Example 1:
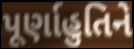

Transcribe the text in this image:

પૂર્ણાહુતિને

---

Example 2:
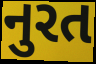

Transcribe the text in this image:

નુરત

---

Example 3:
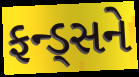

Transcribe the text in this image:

ફન્ડ્સને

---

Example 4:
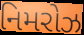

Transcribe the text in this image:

નિમરોઝ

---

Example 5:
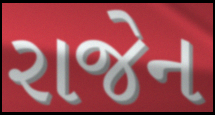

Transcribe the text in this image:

રાજેન